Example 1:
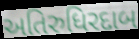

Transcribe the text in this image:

અતિરુધિરદાબ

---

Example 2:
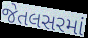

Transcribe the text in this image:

જેતલસરમાં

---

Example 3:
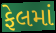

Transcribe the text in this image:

ફેલમાં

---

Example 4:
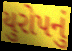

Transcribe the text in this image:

યુરોપનું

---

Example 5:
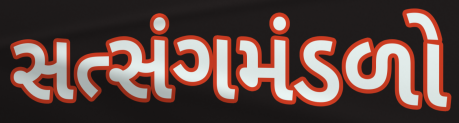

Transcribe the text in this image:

સત્સંગમંડળો